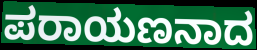
ಪರಾಯಣನಾದ